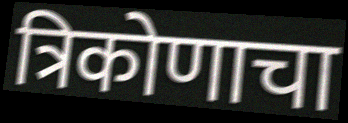
त्रिकोणाचा